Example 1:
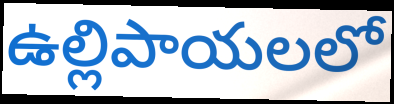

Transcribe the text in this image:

ఉల్లిపాయలలో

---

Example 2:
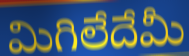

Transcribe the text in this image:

మిగిలేదేమీ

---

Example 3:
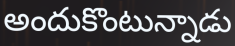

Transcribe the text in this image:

అందుకొంటున్నాడు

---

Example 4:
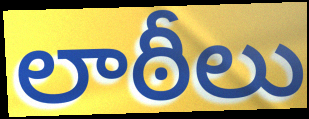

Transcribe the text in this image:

లాఠీలు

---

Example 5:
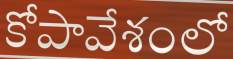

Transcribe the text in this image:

కోపావేశంలో